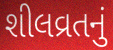
શીલવ્રતનું